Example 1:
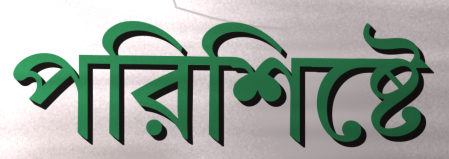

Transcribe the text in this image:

পরিশিষ্টে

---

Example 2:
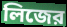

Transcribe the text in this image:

লিজের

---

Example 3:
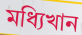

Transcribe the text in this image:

মধ্যিখান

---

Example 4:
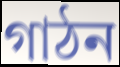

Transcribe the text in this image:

গাঠন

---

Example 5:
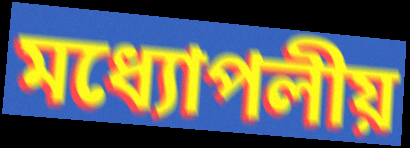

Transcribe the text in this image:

মধ্যোপলীয়